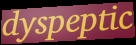
dyspeptic